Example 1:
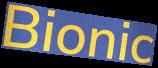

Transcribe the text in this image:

Bionic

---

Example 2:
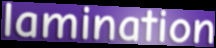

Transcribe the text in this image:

lamination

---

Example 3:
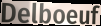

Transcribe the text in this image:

Delboeuf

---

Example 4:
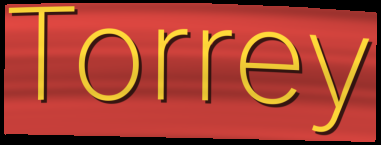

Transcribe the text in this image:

Torrey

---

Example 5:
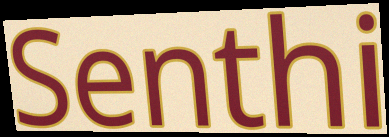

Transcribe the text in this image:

Senthi